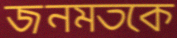
জনমতকে